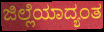
ಜಿಲ್ಲೆಯಾದ್ಯಂತ